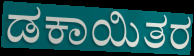
ಡಕಾಯಿತರ